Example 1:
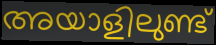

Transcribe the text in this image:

അയാളിലുണ്ട്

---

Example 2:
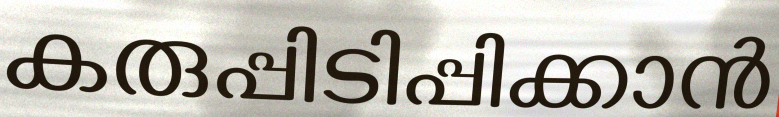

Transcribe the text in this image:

കരുപ്പിടിപ്പിക്കാൻ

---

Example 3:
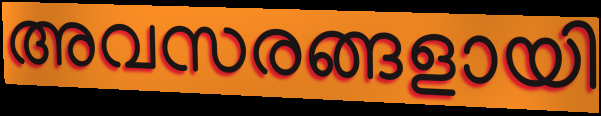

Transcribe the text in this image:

അവസരങ്ങളായി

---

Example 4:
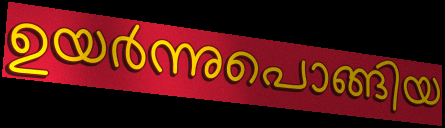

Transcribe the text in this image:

ഉയർന്നുപൊങ്ങിയ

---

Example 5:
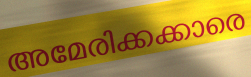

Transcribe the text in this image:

അമേരിക്കക്കാരെ